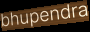
bhupendra